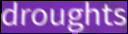
droughts